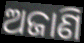
ଅଜାଣି